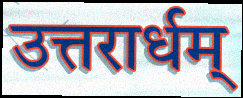
उत्तरार्धम्